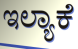
ಇಲ್ಯಾಕೆ